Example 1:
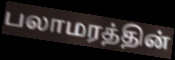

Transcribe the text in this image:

பலாமரத்தின்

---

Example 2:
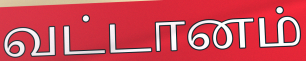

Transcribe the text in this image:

வட்டானம்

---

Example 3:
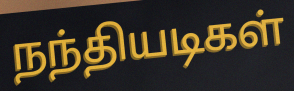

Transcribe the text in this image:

நந்தியடிகள்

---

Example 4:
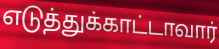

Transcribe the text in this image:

எடுத்துக்காட்டாவார்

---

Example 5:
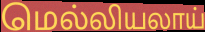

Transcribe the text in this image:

மெல்லியலாய்